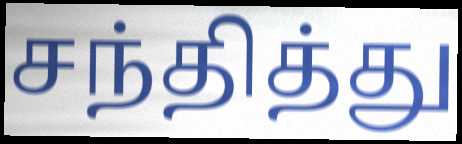
சந்தித்து